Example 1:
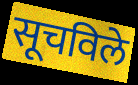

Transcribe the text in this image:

सूचविले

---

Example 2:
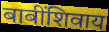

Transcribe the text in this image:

बाबींशिवाय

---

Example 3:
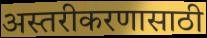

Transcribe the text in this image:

अस्तरीकरणासाठी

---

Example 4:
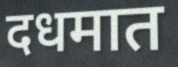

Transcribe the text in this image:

दधमात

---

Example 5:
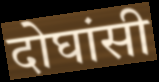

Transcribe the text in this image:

दोघांसी